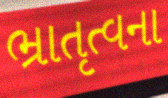
ભ્રાતૃત્વના